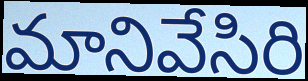
మానివేసిరి